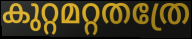
കുറ്റമറ്റതത്രേ